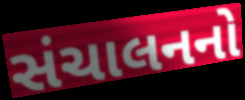
સંચાલનનો